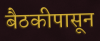
बैठकीपासून